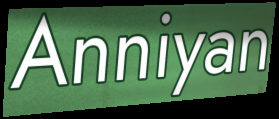
Anniyan